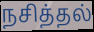
நசித்தல்